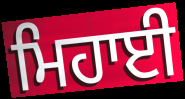
ਮਿਹਾਈ